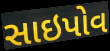
સાઇપોવ